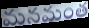
మనమంత